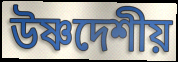
উষ্ণদেশীয়